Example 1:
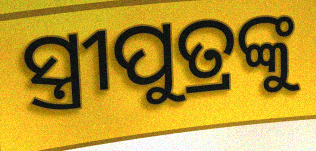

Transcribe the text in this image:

ସ୍ତ୍ରୀପୁତ୍ରଙ୍କୁ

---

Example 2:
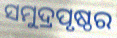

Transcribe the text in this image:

ସମୁଦ୍ରପୃଷ୍ଠର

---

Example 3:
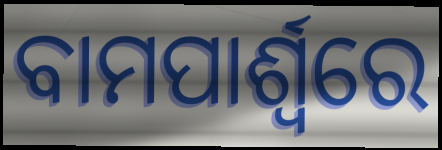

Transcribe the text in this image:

ବାମପାର୍ଶ୍ଵରେ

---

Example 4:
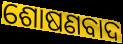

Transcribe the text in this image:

ଶୋଷଣବାଦ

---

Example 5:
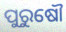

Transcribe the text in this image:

ପୁରୁଷୌ